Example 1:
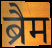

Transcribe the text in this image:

ब्रैम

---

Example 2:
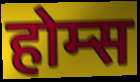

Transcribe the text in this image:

होम्स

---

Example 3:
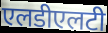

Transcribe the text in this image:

एलडीएलटी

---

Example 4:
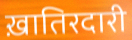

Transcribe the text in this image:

ख़ातिरदारी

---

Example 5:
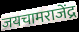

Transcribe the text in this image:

जयचामराजेंद्र